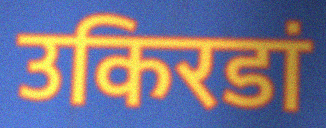
उकिरडां